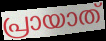
പ്രായാത്